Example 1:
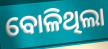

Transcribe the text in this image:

ବୋଳିଥିଲା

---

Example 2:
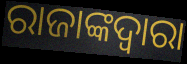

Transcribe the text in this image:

ରାଜାଙ୍କଦ୍ଵାରା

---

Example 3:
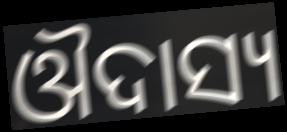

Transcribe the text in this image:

ଔଦାସ୍ୟ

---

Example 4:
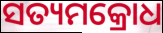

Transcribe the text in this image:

ସତ୍ୟମକ୍ରୋଧ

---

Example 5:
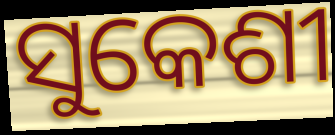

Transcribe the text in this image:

ସୁକେଶୀ